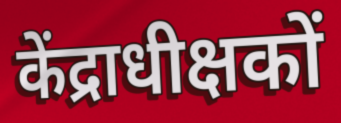
केंद्राधीक्षकों